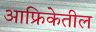
आफ्रिकेतील